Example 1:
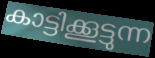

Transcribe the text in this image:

കാട്ടിക്കൂട്ടുന്ന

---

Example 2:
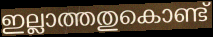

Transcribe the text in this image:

ഇല്ലാത്തതുകൊണ്ട്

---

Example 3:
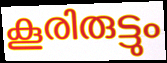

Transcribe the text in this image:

കൂരിരുട്ടും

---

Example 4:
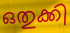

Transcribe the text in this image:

ഒതുക്കി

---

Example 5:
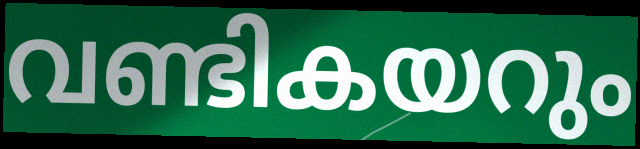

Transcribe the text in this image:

വണ്ടികയറും